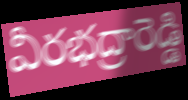
వీరభద్రారెడ్డి